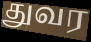
துவர